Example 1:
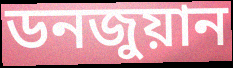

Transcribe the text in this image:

ডনজুয়ান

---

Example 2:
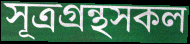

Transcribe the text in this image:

সূত্রগ্রন্থসকল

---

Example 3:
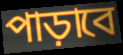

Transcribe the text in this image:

পাড়াবে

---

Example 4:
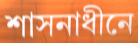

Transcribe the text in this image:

শাসনাধীনে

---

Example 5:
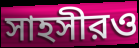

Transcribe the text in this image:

সাহসীরও